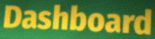
Dashboard